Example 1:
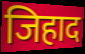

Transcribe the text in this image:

जिहाद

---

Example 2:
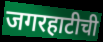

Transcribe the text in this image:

जगरहाटीची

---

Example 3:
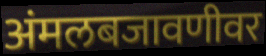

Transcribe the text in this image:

अंमलबजावणीवर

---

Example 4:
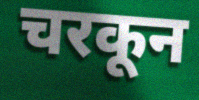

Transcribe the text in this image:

चरकून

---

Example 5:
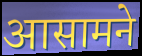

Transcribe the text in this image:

आसामने